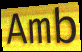
Amb